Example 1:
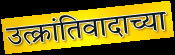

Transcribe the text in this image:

उत्क्रांतिवादाच्या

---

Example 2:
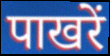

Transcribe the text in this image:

पाखरें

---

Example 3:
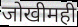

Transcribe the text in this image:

जोखीमही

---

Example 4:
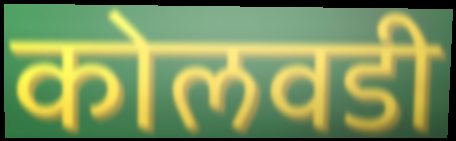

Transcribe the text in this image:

कोलवडी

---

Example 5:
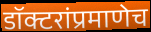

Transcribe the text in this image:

डॉक्टरांप्रमाणेच